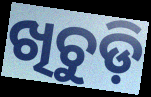
ଖିଚୁଡ଼ି